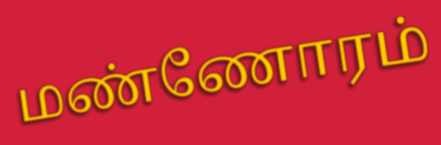
மண்ணோரம்